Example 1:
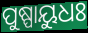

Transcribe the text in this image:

ପୁଷ୍ପାୟୁଧଃ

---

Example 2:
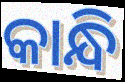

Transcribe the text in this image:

କାନ୍ଧି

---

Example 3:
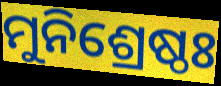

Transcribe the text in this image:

ମୁନିଶ୍ରେଷ୍ଠଃ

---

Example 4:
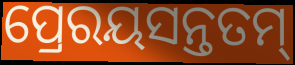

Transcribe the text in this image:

ପ୍ରେରୟସନ୍ତତମ୍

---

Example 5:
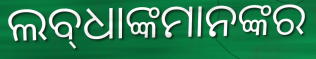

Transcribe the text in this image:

ଲବ୍‌ଧାଙ୍କମାନଙ୍କର